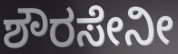
ಶೌರಸೇನೀ